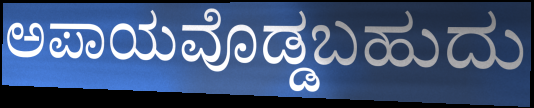
ಅಪಾಯವೊಡ್ಡಬಹುದು